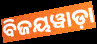
ବିଜୟୱାଡ଼ା